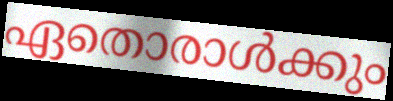
ഏതൊരാൾക്കും